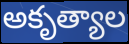
అకృత్యాల